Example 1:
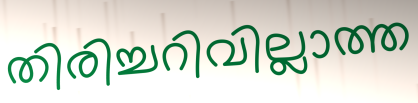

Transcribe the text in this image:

തിരിച്ചറിവില്ലാത്ത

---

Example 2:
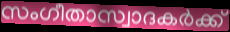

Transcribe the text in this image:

സംഗീതാസ്വാദകർക്ക്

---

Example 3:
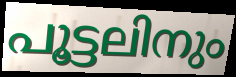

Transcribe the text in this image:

പൂട്ടലിനും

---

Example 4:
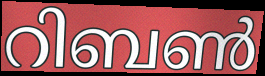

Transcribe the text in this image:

റിബൺ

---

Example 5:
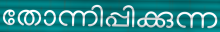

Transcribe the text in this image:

തോന്നിപ്പിക്കുന്ന